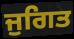
ਜੁਗਿਤ